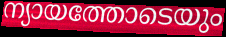
ന്യായത്തോടെയും